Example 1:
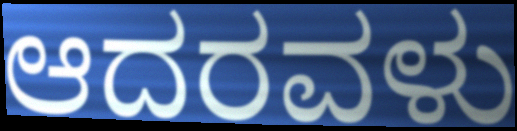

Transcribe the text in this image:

ಆದರವಳು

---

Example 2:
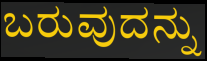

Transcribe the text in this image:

ಬರುವುದನ್ನು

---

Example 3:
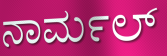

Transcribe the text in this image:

ನಾರ್ಮಲ್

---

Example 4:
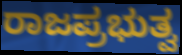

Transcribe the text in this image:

ರಾಜಪ್ರಭುತ್ವ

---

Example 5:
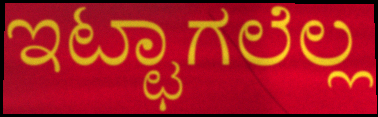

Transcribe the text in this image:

ಇಟ್ಟಾಗಲೆಲ್ಲ